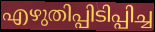
എഴുതിപ്പിടിപ്പിച്ച